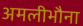
अमलीभौना